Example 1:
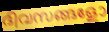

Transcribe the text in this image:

ദിവസങ്ങളോ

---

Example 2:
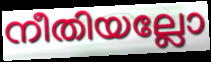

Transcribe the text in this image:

നീതിയല്ലോ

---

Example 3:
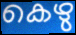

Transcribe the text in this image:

കെഴു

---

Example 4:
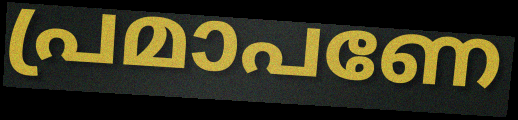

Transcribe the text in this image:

പ്രമാപണേ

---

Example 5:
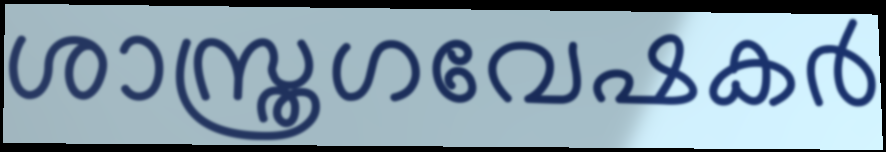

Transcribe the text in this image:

ശാസ്ത്രഗവേഷകർ